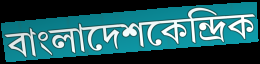
বাংলাদেশকেন্দ্রিক